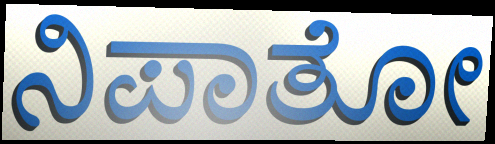
ನಿಪಾತೋ